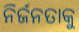
ନିର୍ଜନତାକୁ